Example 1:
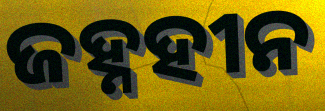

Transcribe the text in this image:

ଜହ୍ନହୀନ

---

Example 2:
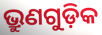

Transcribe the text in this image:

ଭ୍ରୁଣଗୁଡ଼ିକ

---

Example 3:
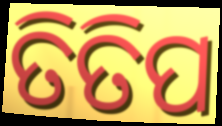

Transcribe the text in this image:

ତିତିପ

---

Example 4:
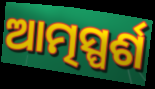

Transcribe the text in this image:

ଆତ୍ମସ୍ପର୍ଶ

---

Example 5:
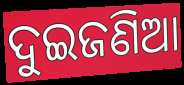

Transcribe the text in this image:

ଦୁଇଜଣିଆ